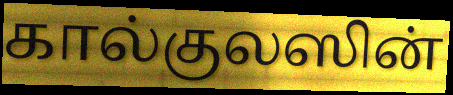
கால்குலஸின்